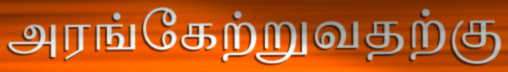
அரங்கேற்றுவதற்கு